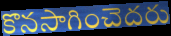
కొనసాగించెదరు